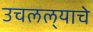
उचलल्याचे